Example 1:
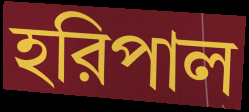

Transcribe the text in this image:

হরিপাল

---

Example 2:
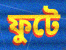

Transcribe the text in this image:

ফুটে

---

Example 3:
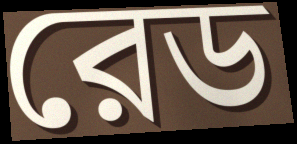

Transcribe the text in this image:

রেড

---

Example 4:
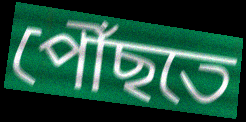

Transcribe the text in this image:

পৌঁছতে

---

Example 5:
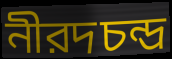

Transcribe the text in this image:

নীরদচন্দ্র